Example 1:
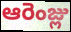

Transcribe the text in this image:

ఆరెంజ్లు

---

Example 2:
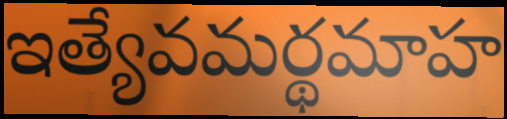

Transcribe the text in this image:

ఇత్యేవమర్థమాహ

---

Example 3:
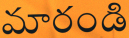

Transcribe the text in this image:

మారండి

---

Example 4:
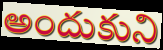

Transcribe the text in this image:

అందుకుని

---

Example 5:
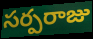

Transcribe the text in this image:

సర్పరాజు